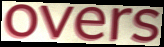
overs